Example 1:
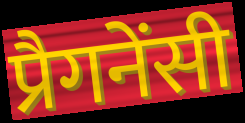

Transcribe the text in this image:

प्रैगनेंसी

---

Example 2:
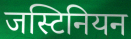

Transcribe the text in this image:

जस्टिनियन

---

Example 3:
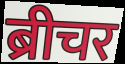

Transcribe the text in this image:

ब्रीचर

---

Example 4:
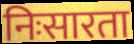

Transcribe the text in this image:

निःसारता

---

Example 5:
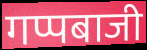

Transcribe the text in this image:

गप्पबाजी